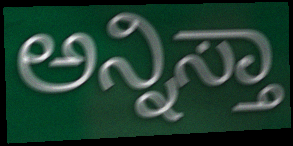
ಅನ್ನಿಸ್ತಾ